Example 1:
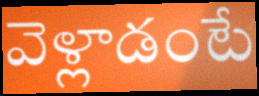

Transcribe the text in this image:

వెళ్లాడంటే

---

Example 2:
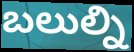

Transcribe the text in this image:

బలుల్ని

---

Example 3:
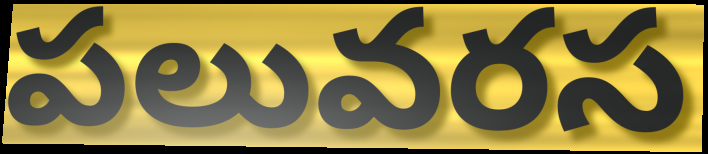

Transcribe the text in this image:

పలువరస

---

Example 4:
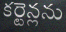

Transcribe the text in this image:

కర్టెన్లను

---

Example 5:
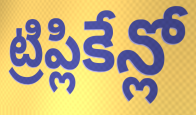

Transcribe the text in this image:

ట్రిప్లికేన్లో